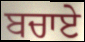
ਬਚਾਏ